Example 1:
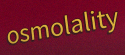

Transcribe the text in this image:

osmolality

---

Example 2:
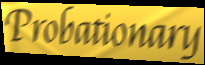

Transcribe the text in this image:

Probationary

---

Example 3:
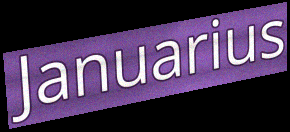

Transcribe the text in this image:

Januarius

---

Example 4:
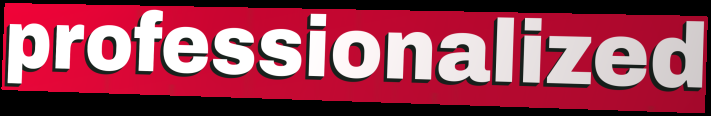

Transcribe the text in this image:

professionalized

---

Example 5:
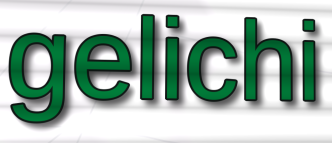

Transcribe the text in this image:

gelichi